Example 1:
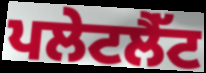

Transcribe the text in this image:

ਪਲੇਟਲੈੱਟ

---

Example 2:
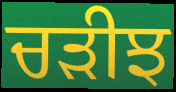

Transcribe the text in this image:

ਚੜੀਝ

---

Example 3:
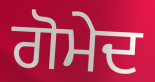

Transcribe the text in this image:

ਗੋਮੇਦ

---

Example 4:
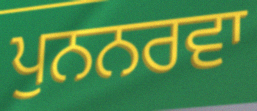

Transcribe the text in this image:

ਪੁਨਨਰਵਾ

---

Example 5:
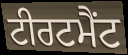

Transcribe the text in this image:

ਟੀਰਟਮੈਂਟ